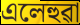
এলেহুৱা